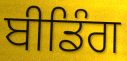
ਬੀਡਿੰਗ